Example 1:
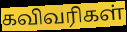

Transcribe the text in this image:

கவிவரிகள்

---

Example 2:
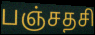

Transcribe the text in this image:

பஞ்சதசி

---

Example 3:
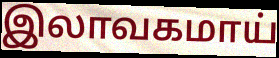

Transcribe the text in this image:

இலாவகமாய்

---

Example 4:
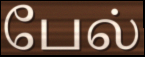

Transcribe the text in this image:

பேல்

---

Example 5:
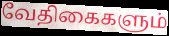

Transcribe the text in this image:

வேதிகைகளும்